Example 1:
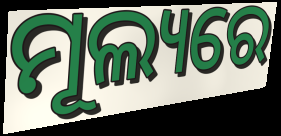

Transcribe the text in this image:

ମୂଲ୍ୟରେ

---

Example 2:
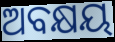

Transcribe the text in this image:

ଅବକ୍ଷୟ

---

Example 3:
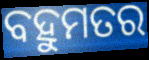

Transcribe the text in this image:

ବହୁମତର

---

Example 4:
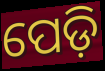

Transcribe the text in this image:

ପେଡ଼ି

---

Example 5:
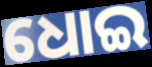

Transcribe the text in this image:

ଧୋଇ